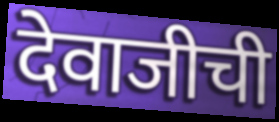
देवाजीची